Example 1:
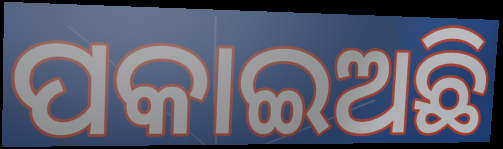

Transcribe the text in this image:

ପକାଇଅଛି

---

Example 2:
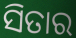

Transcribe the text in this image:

ସିତାର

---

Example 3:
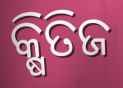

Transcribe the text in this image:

କ୍ଷିତିଜ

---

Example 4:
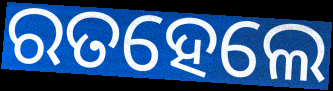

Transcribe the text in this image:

ରତହେଲେ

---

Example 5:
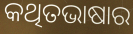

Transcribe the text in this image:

କଥିତଭାଷାର